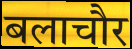
बलाचौर